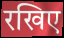
रखिए